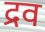
द्रव